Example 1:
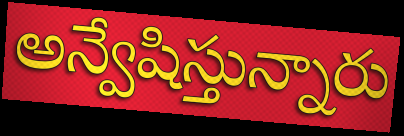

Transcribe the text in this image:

అన్వేషిస్తున్నారు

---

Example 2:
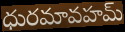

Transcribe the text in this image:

ధురమావహమ్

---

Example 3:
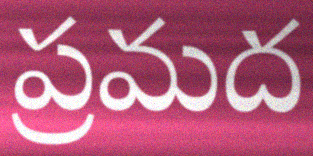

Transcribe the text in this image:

ప్రమద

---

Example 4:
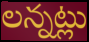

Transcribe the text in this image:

లన్నట్లు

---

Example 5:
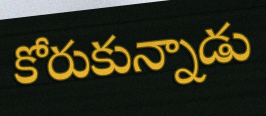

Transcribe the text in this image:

కోరుకున్నాడు